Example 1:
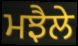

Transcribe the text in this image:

ਮਝੈਲੇ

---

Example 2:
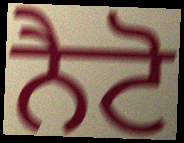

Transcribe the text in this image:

ਨੈਟੋ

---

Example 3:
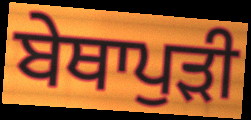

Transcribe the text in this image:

ਬੇਥਾਪੁੜੀ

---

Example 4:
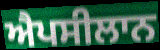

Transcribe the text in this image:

ਐਪਸੀਲਾਨ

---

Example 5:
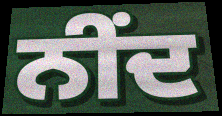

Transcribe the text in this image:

ਨੀਂਦ